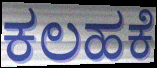
ಕಲಹಕೆ